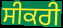
ਸੀਕਰੀ